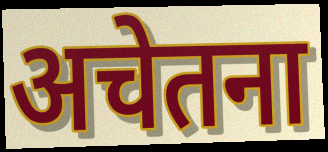
अचेतना